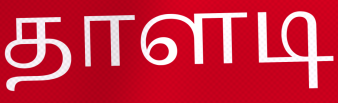
தாளடி